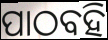
ପାଠବହି